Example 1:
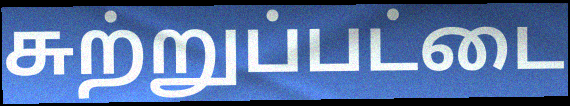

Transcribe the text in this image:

சுற்றுப்பட்டை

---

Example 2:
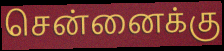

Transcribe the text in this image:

சென்னைக்கு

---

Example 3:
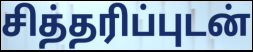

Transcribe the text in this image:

சித்தரிப்புடன்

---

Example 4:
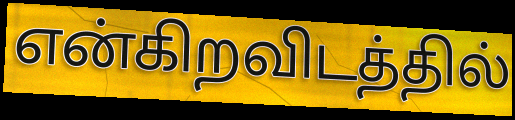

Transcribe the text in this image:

என்கிறவிடத்தில்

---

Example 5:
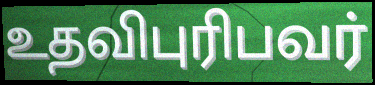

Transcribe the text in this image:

உதவிபுரிபவர்